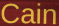
Cain